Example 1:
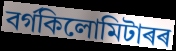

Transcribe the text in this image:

বৰ্গকিলোমিটাৰৰ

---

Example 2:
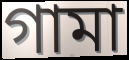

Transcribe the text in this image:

গামা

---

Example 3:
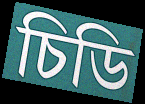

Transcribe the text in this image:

চিডি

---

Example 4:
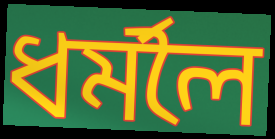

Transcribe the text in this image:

ধৰ্মলৈ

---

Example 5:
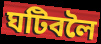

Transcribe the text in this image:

ঘটিবলৈ